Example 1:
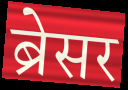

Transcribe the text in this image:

ब्रेसर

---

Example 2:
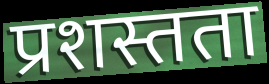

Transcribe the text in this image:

प्रशस्तता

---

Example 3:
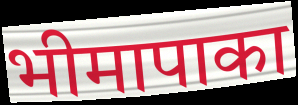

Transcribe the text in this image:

भीमापाका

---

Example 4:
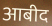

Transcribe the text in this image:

आबीद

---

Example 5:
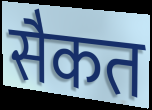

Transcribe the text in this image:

सैकत